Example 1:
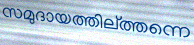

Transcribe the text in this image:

സമുദായത്തില്ത്തന്നെ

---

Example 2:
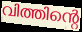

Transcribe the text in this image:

വിത്തിന്റെ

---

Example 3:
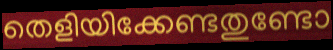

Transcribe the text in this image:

തെളിയിക്കേണ്ടതുണ്ടോ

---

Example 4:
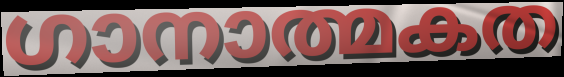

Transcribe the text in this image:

ഗാനാത്മകത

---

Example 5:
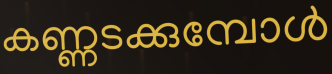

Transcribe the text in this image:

കണ്ണടക്കുമ്പോൾ